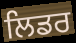
ਲਿਡਰ